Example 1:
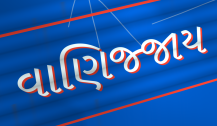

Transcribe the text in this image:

વાણિજ્જાય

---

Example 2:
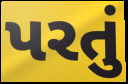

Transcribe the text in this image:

પરતું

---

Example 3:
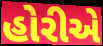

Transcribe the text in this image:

હોરીએ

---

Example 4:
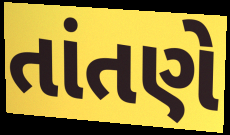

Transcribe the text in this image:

તાંતણે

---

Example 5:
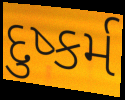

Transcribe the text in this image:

દુષ્કર્મ